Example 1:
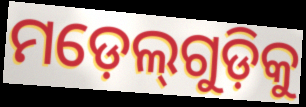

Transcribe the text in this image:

ମଡ଼େଲ୍‌ଗୁଡ଼ିକୁ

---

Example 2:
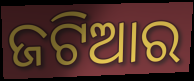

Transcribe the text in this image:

ଜଟିଆର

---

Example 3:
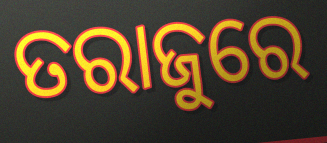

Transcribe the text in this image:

ତରାଜୁରେ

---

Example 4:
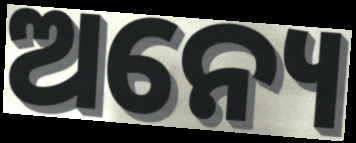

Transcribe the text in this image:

ଅନ୍ୟେ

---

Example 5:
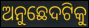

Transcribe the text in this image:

ଅନୁଛେଦଟିକୁ